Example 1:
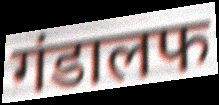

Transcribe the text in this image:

गंडालफ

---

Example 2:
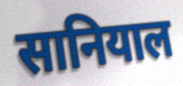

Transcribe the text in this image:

सानियाल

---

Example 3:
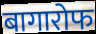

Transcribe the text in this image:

बागारोफ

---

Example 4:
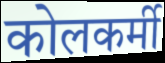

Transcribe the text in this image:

कोलकर्मी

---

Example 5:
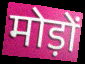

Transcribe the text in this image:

मोड़ों